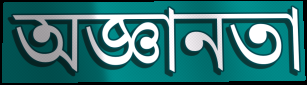
অজ্ঞানতা